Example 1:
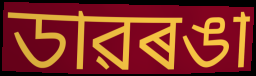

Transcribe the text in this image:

ডাৱৰঙা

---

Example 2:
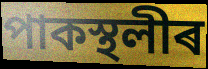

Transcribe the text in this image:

পাকস্থলীৰ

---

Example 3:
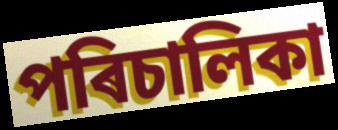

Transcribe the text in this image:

পৰিচালিকা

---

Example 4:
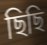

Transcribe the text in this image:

ছিছি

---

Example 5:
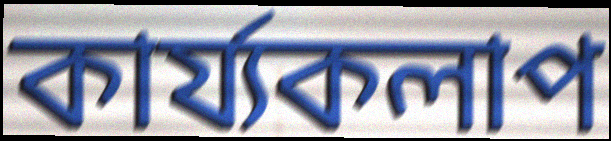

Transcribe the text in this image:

কাৰ্য্যকলাপ